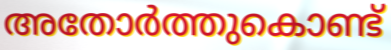
അതോർത്തുകൊണ്ട്